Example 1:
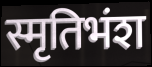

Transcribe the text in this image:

स्मृतिभंश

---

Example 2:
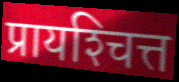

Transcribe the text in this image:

प्रायश्चित्त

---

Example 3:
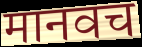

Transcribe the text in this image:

मानवच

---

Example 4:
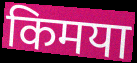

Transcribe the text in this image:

किमया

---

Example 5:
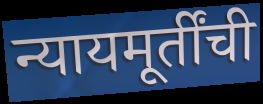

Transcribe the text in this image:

न्यायमूर्तींची